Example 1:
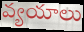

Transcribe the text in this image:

వ్యయాలు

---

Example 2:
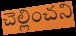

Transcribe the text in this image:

చెల్లించని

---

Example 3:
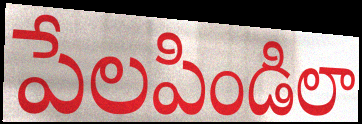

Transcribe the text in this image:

పేలపిండిలా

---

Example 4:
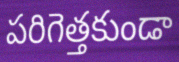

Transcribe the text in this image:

పరిగెత్తకుండా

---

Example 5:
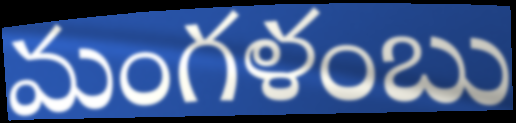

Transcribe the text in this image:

మంగళంబు